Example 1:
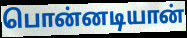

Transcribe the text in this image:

பொன்னடியான்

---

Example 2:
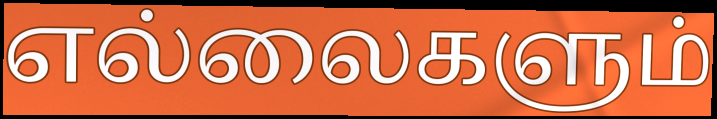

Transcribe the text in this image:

எல்லைகளும்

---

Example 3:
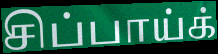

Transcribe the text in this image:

சிப்பாய்க்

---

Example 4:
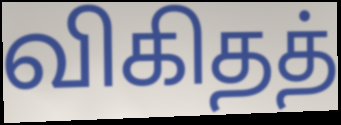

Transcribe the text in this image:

விகிதத்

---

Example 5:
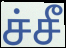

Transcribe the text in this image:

ச்சீ